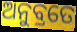
ଅନୁବ୍ରତେ